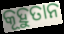
କୂହୁତାନ